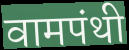
वामपंथी